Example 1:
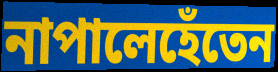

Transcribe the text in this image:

নাপালেহেঁতেন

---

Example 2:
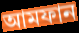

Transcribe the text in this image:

আমফান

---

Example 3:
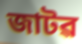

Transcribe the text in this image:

জাটৱ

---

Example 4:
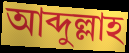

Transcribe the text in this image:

আব্দুল্লাহ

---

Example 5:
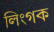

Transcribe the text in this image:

লিংগক